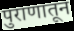
पुराणातून